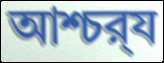
আশ্চর্‍য